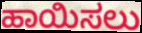
ಹಾಯಿಸಲು